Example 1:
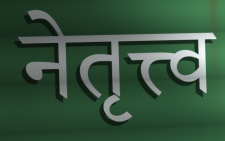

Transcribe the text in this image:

नेतृत्त्व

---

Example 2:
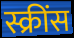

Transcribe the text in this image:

स्क्रींस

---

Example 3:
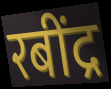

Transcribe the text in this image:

रबींद्र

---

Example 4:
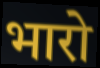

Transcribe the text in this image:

भारो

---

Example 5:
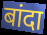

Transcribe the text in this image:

बांदा